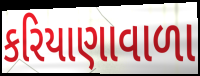
કરિયાણાવાળા